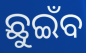
ଛୁଇଁବ